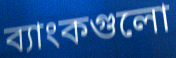
ব্যাংকগুলো